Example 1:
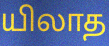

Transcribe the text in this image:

யிலாத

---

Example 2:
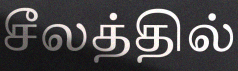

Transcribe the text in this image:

சீலத்தில்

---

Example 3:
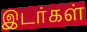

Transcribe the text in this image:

இடர்கள்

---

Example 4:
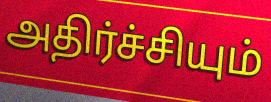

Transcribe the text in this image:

அதிர்ச்சியும்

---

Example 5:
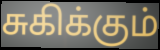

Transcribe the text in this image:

சுகிக்கும்